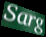
Sarg